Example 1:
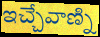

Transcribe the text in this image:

ఇచ్చేవాణ్ని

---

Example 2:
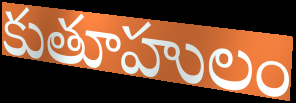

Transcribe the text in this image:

కుతూహులం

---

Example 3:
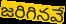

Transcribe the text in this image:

జరిగినవే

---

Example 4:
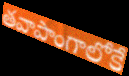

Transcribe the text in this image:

తవాపాంగాలోకే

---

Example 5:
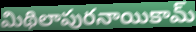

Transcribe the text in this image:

మిథిలాపురనాయికామ్